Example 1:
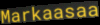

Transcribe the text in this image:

Markaasaa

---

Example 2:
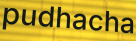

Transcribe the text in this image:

pudhacha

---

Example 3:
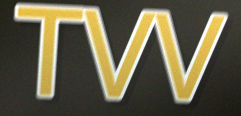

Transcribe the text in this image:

TVV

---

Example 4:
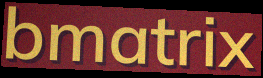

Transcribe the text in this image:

bmatrix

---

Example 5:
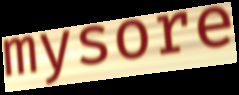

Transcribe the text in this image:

mysore